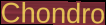
Chondro